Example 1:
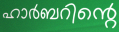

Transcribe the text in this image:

ഹാർബറിന്റെ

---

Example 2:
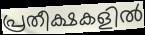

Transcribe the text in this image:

പ്രതീക്ഷകളിൽ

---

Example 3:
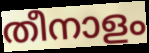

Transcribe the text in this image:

തീനാളം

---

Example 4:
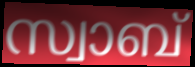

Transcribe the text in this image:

സ്വാബ്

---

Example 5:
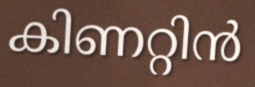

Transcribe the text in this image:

കിണറ്റിൻ